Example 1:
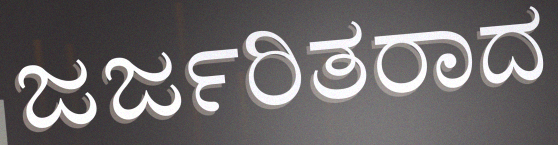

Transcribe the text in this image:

ಜರ್ಜರಿತರಾದ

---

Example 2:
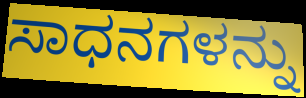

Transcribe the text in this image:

ಸಾಧನಗಳನ್ನು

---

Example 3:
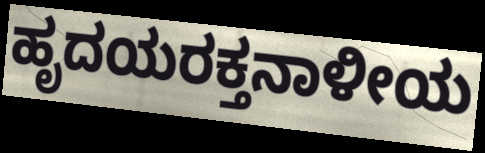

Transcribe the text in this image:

ಹೃದಯರಕ್ತನಾಳೀಯ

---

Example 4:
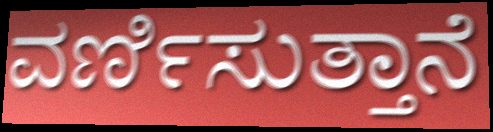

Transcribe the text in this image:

ವರ್ಣಿಸುತ್ತಾನೆ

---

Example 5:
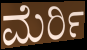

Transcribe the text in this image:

ಮೆರ್ರಿ